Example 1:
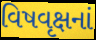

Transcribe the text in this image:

વિષવૃક્ષનાં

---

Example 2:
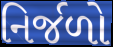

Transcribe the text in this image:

નિર્જળો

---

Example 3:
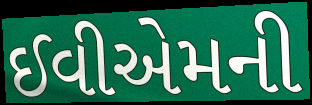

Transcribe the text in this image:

ઈવીએમની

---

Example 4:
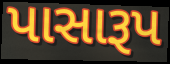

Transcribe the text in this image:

પાસારૂપ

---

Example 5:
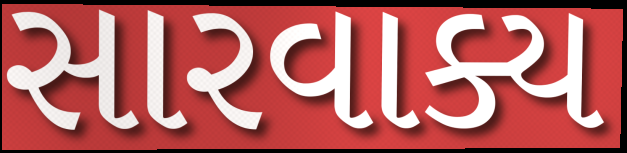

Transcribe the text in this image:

સારવાક્ય